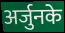
अर्जुनके